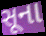
સૂના